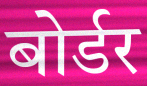
बोर्डर